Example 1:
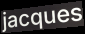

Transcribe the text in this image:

jacques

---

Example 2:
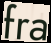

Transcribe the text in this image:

fra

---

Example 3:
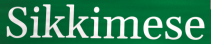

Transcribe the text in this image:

Sikkimese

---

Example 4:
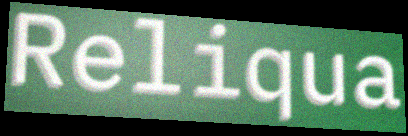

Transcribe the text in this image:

Reliqua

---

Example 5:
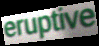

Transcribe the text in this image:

eruptive